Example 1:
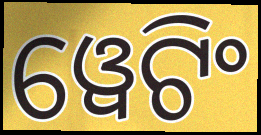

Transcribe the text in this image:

ୱେଟିଂ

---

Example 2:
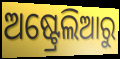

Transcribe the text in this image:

ଅଷ୍ଟ୍ରେଲିଆରୁ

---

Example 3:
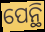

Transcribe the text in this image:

ପେନ୍ଥି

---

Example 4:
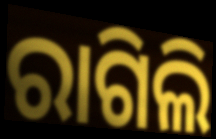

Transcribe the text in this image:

ରାଗିଲି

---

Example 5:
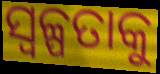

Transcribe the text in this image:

ସ୍ଵଳ୍ପତାକୁ